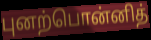
புனற்பொன்னித்